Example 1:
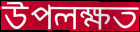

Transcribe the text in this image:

উপলক্ষত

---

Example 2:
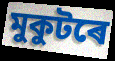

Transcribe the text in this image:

মুকুটৰে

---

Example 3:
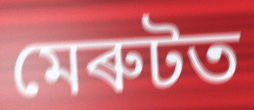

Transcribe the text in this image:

মেৰুটত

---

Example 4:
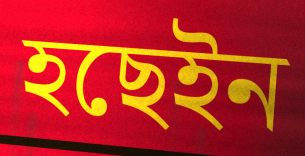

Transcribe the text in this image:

হছেইন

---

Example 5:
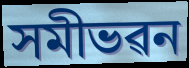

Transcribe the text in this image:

সমীভৱন